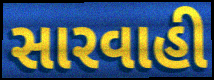
સારવાહી